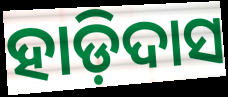
ହାଡ଼ିଦାସ